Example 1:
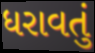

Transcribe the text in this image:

ધરાવતું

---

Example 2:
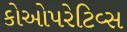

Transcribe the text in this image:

કોઓપરેટિવ્સ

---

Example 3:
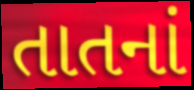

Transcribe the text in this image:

તાતનાં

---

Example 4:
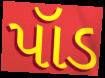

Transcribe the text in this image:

પૉડ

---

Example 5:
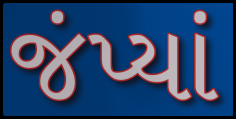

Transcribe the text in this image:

જંપ્યાં